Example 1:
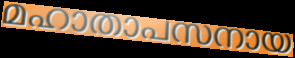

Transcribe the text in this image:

മഹാതാപസനായ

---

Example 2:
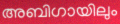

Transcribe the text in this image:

അബിഗായിലും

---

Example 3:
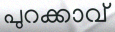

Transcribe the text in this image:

പുറക്കാവ്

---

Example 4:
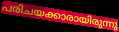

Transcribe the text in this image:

പരിചയക്കാരായിരുന്നു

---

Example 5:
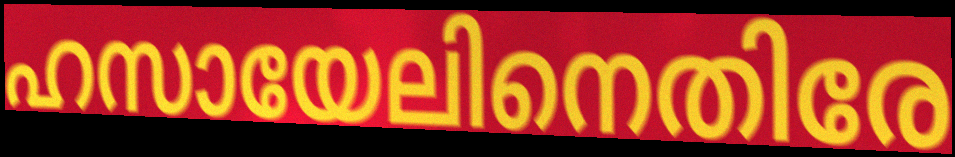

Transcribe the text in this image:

ഹസായേലിനെതിരേ